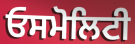
ਓਸਮੋਲਿਟੀ